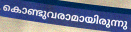
കൊണ്ടുവരാമായിരുന്നു